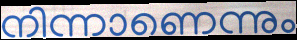
നിന്നാണെന്നും